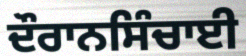
ਦੌਰਾਨਸਿੰਚਾਈ